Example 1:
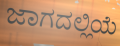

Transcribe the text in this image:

ಜಾಗದಲ್ಲಿಯೆ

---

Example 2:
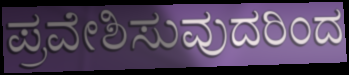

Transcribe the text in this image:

ಪ್ರವೇಶಿಸುವುದರಿಂದ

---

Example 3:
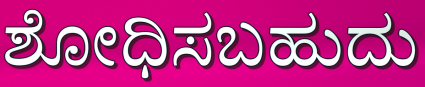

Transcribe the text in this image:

ಶೋಧಿಸಬಹುದು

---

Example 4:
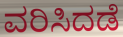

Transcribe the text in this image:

ವರಿಸಿದಡೆ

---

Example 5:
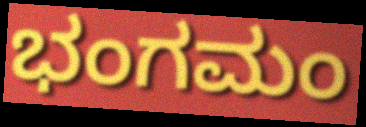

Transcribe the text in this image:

ಭಂಗಮಂ